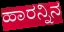
ಹಾರನ್ನಿನ